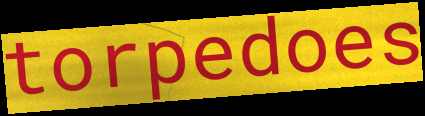
torpedoes